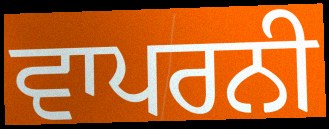
ਵਾਪਰਨੀ